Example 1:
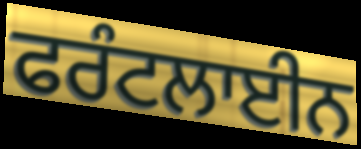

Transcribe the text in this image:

ਫਰੰਟਲਾਈਨ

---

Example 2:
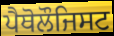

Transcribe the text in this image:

ਪੈਥੋਲੌਜਿਸਟ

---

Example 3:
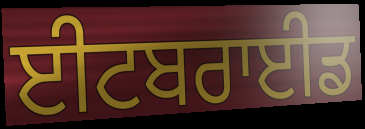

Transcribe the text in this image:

ਈਟਬਰਾਈਡ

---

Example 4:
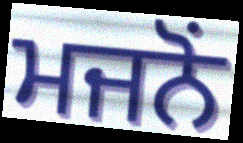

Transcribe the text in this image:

ਮਜਨੋਂ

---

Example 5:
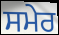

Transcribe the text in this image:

ਸਮੇਰ